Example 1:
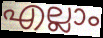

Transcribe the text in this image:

എല്ലാം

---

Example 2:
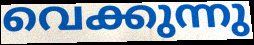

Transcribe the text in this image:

വെക്കുന്നു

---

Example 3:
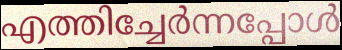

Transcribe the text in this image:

എത്തിച്ചേർന്നപ്പോൾ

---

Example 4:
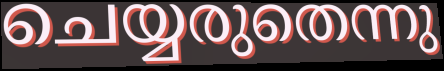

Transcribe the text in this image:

ചെയ്യരുതെന്നു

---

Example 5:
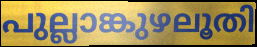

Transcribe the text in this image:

പുല്ലാങ്കുഴലൂതി